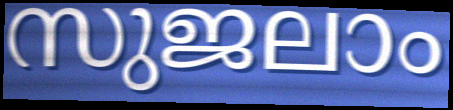
സുജലാം